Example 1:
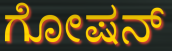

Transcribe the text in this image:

ಗೋಷನ್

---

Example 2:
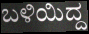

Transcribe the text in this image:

ಬಳಿಯಿದ್ದ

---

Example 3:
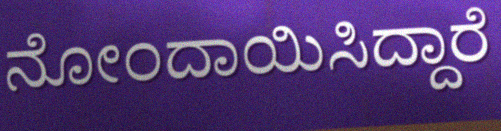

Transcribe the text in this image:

ನೋಂದಾಯಿಸಿದ್ದಾರೆ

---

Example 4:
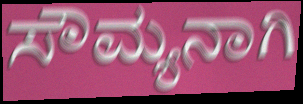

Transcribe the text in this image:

ಸೌಮ್ಯನಾಗಿ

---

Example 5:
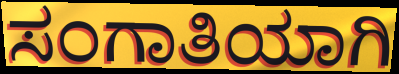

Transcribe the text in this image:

ಸಂಗಾತಿಯಾಗಿ